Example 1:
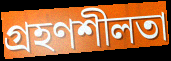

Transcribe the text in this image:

গ্রহণশীলতা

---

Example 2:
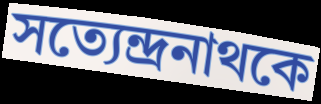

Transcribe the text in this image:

সত্যেন্দ্রনাথকে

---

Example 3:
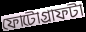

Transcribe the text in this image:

ফোটোগ্রাফটা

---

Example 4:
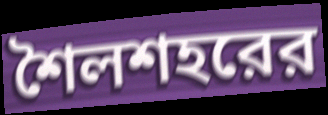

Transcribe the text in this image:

শৈলশহরের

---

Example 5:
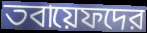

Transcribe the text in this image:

তবায়েফদের